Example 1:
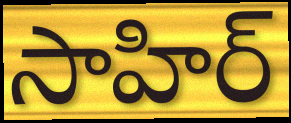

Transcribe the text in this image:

సాహిర్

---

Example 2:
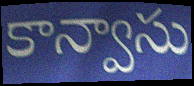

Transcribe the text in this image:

కాన్వాసు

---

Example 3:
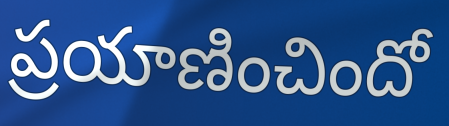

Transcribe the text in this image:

ప్రయాణించిందో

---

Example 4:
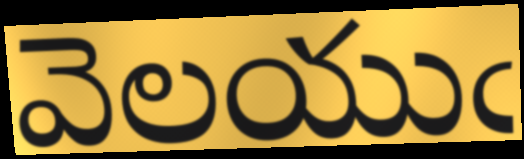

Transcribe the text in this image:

వెలయుఁ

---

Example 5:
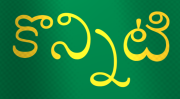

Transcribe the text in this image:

కొన్నిటి